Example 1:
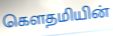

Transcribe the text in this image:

கெளதமியின்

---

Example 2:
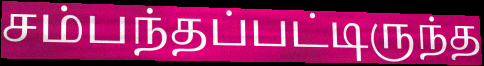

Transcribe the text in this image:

சம்பந்தப்பட்டிருந்த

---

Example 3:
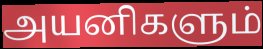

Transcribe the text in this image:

அயனிகளும்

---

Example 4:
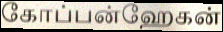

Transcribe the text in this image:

கோப்பன்ஹேகன்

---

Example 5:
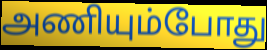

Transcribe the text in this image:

அணியும்போது